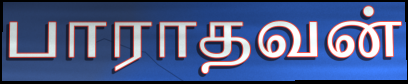
பாராதவன்